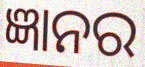
ଜ୍ଞାନର